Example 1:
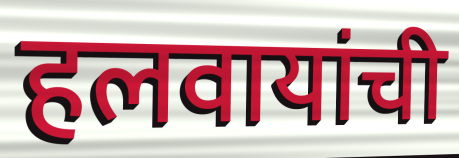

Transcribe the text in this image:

हलवायांची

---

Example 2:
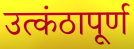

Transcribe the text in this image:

उत्कंठापूर्ण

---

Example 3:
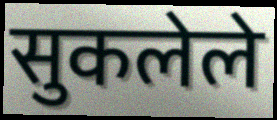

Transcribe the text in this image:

सुकलेले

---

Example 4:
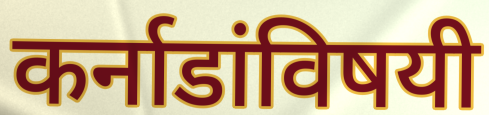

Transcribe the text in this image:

कर्नाडांविषयी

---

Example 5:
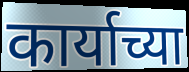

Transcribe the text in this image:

कार्याच्या